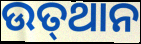
ଉତ୍‍ଥାନ